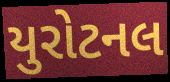
યુરોટનલ